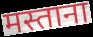
मस्ताना